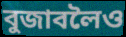
বুজাবলৈও